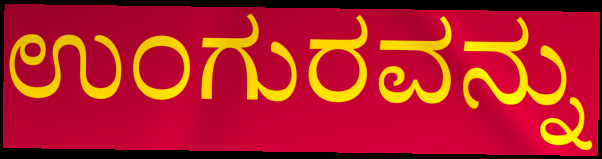
ಉಂಗುರವನ್ನು